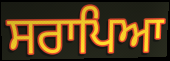
ਸਰਾਪਿਆ